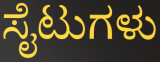
ಸೈಟುಗಳು